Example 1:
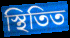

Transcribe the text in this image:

স্থিতিত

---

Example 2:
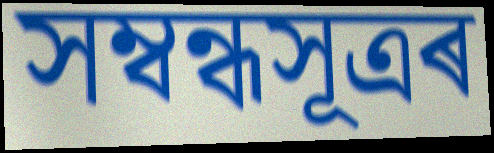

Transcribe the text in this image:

সম্বন্ধসূত্ৰৰ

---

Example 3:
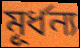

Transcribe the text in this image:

মূৰ্ধন্য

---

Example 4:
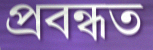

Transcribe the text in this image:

প্ৰবন্ধত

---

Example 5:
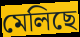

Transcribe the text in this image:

মেলিছে